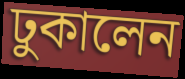
ঢুকালেন